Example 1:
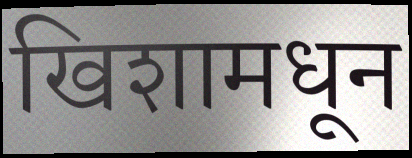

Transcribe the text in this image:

खिशामधून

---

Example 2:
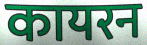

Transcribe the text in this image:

कायरन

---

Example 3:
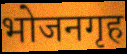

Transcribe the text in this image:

भोजनगृह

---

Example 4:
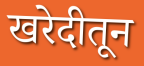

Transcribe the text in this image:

खरेदीतून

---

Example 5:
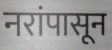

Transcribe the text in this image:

नरांपासून